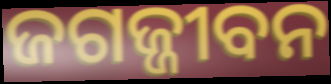
ଜଗଜ୍ଜୀବନ